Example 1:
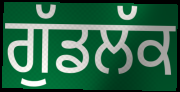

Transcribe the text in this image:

ਗੁੱਡਲੱਕ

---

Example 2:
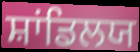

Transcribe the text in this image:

ਸ਼ਾਂਡਿਲਯ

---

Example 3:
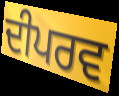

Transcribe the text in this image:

ਦੀਪਰਵ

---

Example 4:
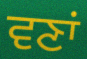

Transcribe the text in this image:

ਵਣਾਂ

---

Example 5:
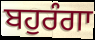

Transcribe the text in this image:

ਬਹੁਰੰਗਾ